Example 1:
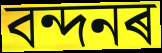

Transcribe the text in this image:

বন্দনৰ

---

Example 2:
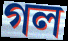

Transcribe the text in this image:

গল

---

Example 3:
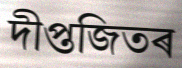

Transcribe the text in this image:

দীপ্তজিতৰ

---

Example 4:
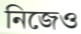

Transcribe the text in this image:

নিজেও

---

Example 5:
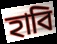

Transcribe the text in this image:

হাবি